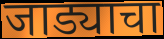
जाड्याचा